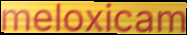
meloxicam